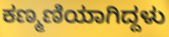
ಕಣ್ಮಣಿಯಾಗಿದ್ದಳು